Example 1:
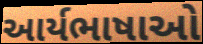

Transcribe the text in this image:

આર્યભાષાઓ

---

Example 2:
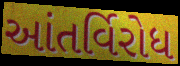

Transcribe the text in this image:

આંતર્વિરોધ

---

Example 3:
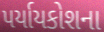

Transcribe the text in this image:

પર્યાયકોશના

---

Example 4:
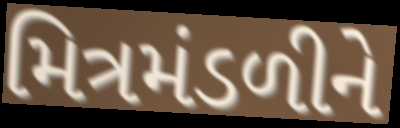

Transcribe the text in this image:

મિત્રમંડળીને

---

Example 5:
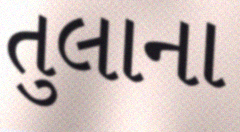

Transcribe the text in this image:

તુલાના